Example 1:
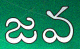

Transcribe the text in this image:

జవ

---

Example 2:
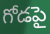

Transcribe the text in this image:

గోడపై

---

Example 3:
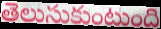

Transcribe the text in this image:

తెలుసుకుంటుంది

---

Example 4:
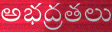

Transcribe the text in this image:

అభద్రతలు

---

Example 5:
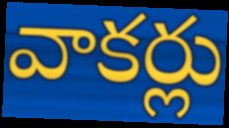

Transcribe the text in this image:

వాకర్లు